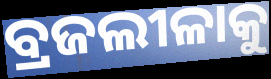
ବ୍ରଜଲୀଳାକୁ